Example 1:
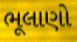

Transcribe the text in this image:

ભૂલાણો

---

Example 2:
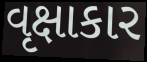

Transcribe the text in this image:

વૃક્ષાકાર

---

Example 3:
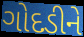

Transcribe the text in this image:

ગોદડીને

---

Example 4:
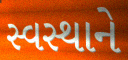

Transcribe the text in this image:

સ્વસ્થાને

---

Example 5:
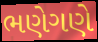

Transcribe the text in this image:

ભણેગણે